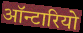
ऑन्टारियो